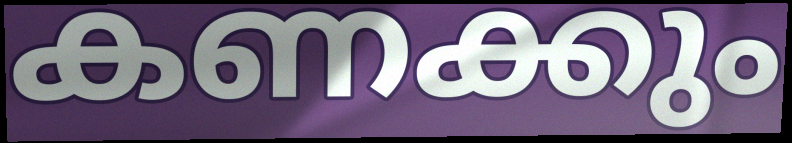
കണക്കും